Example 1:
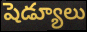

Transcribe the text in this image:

షెడ్యూలు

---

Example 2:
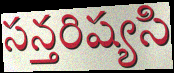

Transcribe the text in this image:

సన్తరిష్యసి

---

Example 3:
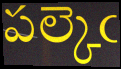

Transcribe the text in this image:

పల్కెఁ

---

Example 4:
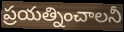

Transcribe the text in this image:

ప్రయత్నించాలనీ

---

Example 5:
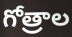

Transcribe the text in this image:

గోత్రాల